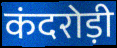
कंदरोड़ी